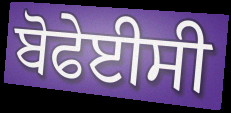
ਬੋਫੇਈਸੀ